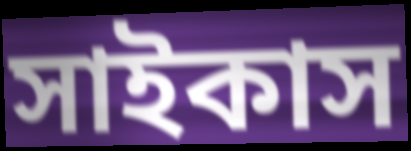
সাইকাস